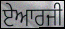
ਏਆਰਜੀ